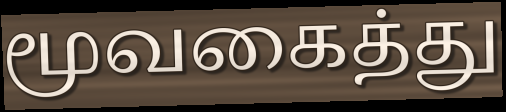
மூவகைத்து